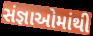
સંજ્ઞાઓમાંથી